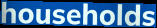
households